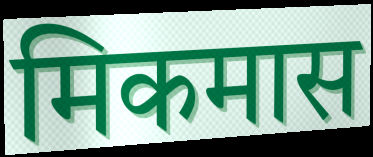
मिकमास